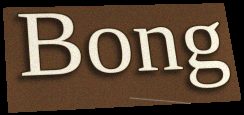
Bong